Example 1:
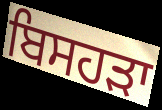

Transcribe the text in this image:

ਬਿਸਹੜਾ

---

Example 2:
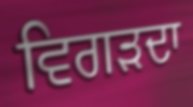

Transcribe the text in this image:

ਵਿਗੜਦਾ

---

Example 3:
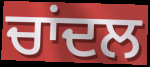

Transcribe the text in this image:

ਚਾਂਦਲ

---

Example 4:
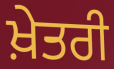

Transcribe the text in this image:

ਖ਼ੇਤਰੀ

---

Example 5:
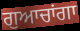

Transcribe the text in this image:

ਗੁਆਚਾਂਗਾ